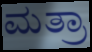
ಮತ್ರಾ